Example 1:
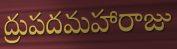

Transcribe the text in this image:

ద్రుపదమహారాజు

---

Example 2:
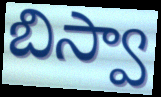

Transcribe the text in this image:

బిస్వా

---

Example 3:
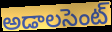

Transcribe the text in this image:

అడాలసెంట్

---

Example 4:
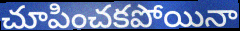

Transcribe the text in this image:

చూపించకపోయినా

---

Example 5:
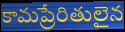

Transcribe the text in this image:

కామప్రేరితులైన